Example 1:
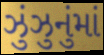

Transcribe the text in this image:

ઝુંઝુનુંમાં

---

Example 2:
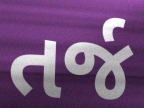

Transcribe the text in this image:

તર્જ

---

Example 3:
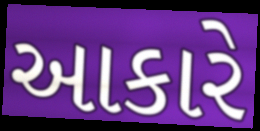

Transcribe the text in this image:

આકારે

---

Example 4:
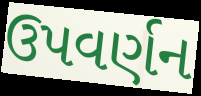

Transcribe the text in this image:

ઉપવર્ણન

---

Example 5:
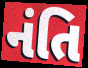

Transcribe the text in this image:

નંતિ